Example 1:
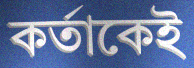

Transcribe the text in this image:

কর্তাকেই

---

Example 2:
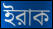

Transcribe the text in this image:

ইরাক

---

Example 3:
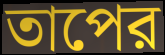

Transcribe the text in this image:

তাপের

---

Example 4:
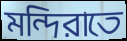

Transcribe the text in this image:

মন্দিরাতে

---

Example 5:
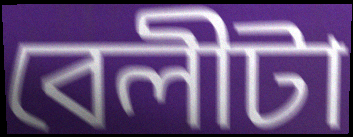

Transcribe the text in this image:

বেলীটা